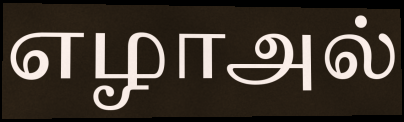
எழாஅல்